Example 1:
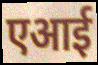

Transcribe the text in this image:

एआई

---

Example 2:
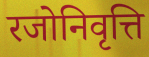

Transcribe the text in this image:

रजोनिवृत्ति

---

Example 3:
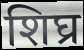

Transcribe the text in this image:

शिघ्र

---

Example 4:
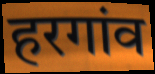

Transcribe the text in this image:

हरगांव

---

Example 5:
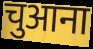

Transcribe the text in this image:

चुआना